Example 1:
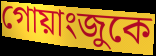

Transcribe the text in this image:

গোয়াংজুকে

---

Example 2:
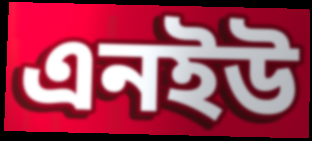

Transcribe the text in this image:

এনইউ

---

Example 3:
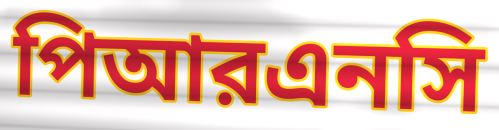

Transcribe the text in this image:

পিআরএনসি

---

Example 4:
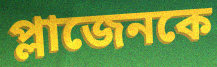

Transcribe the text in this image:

প্লাজেনকে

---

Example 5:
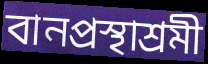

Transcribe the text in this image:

বানপ্রস্থাশ্রমী